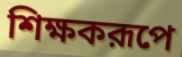
শিক্ষকরূপে